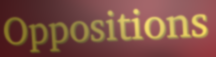
Oppositions